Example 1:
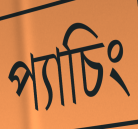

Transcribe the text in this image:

প্যাচিং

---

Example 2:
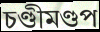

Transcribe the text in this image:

চণ্ডীমণ্ডপ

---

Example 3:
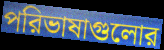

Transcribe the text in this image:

পরিভাষাগুলোর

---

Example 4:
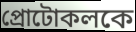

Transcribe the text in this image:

প্রোটোকলকে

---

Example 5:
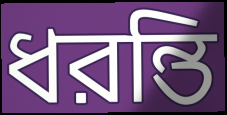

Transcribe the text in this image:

ধরন্তি